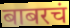
बाबरचं